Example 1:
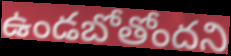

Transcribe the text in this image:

ఉండబోతోందని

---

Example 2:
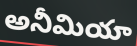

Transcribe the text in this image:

అనీమియా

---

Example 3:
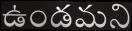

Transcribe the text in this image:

ఉండమని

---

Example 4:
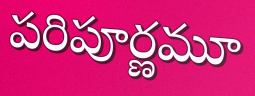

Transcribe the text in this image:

పరిపూర్ణమూ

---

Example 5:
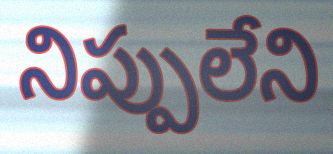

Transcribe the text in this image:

నిప్పులేని